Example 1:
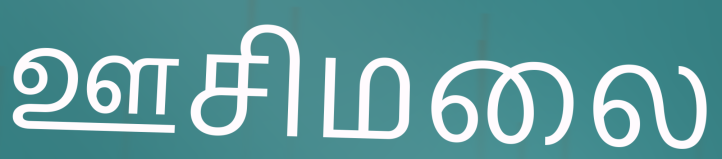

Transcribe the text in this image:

ஊசிமலை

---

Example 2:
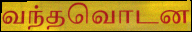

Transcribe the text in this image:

வந்தவொடன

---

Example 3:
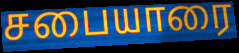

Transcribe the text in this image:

சபையாரை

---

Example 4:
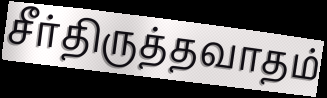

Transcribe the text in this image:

சீர்திருத்தவாதம்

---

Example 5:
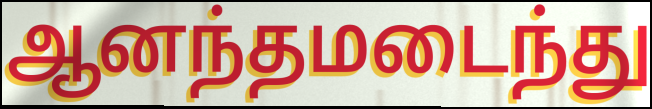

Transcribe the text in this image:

ஆனந்தமடைந்து